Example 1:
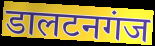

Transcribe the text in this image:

डालटनगंज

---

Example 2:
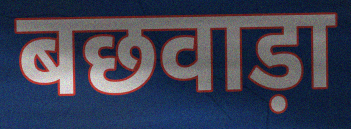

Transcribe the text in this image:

बछवाड़ा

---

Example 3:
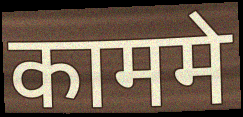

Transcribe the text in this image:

काममे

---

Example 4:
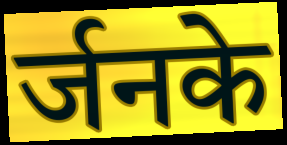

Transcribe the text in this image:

र्जनके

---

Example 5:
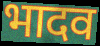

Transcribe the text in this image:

भादव